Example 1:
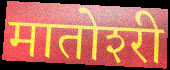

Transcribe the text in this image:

मातोश्री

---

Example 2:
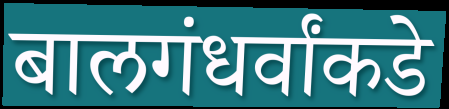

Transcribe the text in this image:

बालगंधर्वांकडे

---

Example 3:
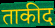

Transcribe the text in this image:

ताकीद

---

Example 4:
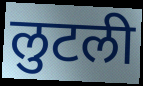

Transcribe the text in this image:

लुटली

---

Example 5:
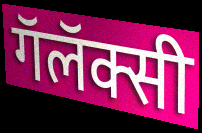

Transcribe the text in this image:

गॅलॅक्सी